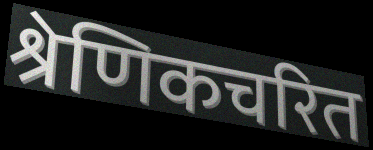
श्रेणिकचरित